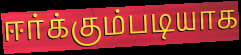
ஈர்க்கும்படியாக